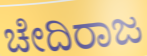
ಚೇದಿರಾಜ